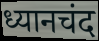
ध्यानचंद